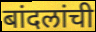
बांदलांची